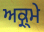
ਅਕ੍ਰ੍ਮੇ